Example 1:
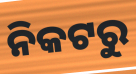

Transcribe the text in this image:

ନିକଟରୁ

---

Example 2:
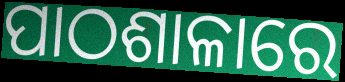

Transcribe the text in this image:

ପାଠଶାଳାରେ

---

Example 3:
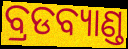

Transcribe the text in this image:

ବ୍ରଡବ୍ୟାଣ୍ଡ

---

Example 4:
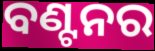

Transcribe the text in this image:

ବଣ୍ଟନର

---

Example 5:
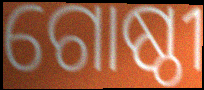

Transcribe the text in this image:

ଗୋଷ୍ଠୀ